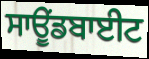
ਸਾਊਂਡਬਾਈਟ